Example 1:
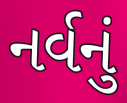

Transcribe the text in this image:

નર્વનું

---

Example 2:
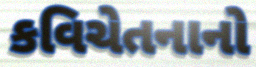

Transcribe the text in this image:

કવિચેતનાનો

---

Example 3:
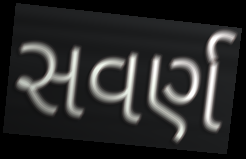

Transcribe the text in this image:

સવર્ણ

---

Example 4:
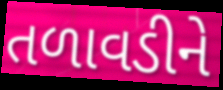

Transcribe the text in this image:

તળાવડીને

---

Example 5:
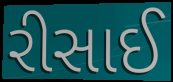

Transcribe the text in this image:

રીસાઈ